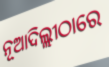
ନୂଆଦିଲ୍ଲୀଠାରେ